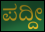
ಪದ್ದೀ